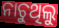
ନାଚୁଥିଲୁ